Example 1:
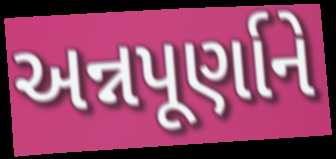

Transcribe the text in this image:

અન્નપૂર્ણાને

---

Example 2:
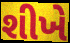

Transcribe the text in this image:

શીખે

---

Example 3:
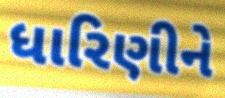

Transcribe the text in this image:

ધારિણીને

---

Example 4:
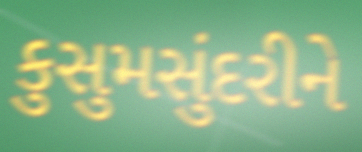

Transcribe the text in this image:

કુસુમસુંદરીને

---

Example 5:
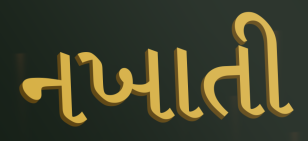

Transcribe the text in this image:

નખાતી